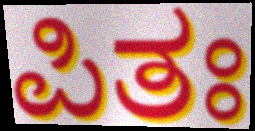
ಪಿತಃ